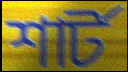
শার্ট